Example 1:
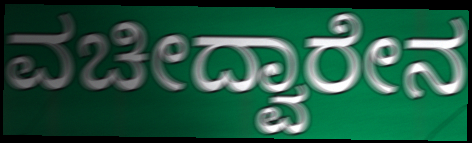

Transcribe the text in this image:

ವಚೀದ್ವಾರೇನ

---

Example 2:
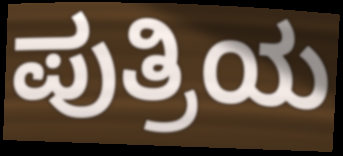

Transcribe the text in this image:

ಪುತ್ರಿಯ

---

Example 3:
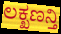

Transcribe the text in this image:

ಲಕ್ಖಣನ್ತಿ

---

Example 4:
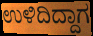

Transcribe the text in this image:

ಉಳಿದಿದ್ದಾಗ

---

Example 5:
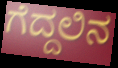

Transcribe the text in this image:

ಗೆದ್ದಲಿನ